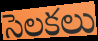
సెలకలు